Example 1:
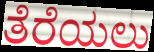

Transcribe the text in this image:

ತೆರೆಯಲು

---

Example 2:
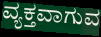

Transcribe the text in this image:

ವ್ಯಕ್ತವಾಗುವ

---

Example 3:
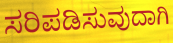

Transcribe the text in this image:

ಸರಿಪಡಿಸುವುದಾಗಿ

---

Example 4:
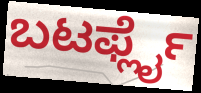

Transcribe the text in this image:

ಬಟರ್ಫ್ಲೈ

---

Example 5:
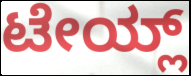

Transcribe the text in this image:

ಟೇಯ್ಲ್